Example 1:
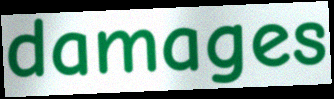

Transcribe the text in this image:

damages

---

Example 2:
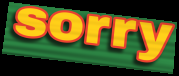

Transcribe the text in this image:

sorry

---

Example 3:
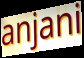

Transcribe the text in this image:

anjani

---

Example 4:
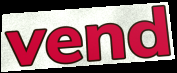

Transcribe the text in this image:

vend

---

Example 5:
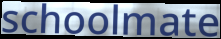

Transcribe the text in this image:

schoolmate